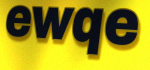
ewqe